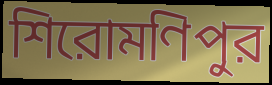
শিরোমণিপুর